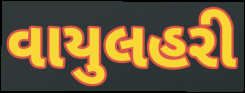
વાયુલહરી